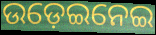
ଉଡ଼େଇନେଇ